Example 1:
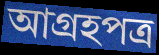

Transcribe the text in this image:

আগ্রহপত্র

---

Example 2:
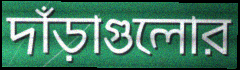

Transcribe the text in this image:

দাঁড়াগুলোর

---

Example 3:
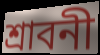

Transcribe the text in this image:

শ্রাবনী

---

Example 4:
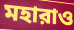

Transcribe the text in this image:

মহারাও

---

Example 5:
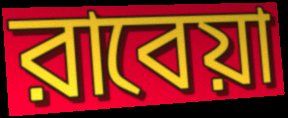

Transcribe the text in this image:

রাবেয়া